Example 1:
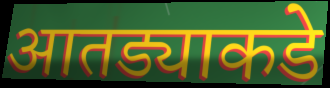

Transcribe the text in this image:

आतड्याकडे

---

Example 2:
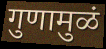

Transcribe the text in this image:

गुणामुळं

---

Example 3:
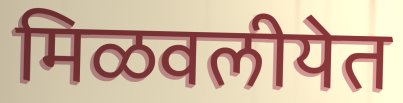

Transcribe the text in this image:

मिळवलीयेत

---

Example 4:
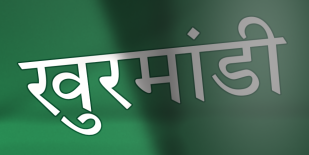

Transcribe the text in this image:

खुरमांडी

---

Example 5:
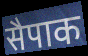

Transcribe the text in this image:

सैपाक